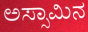
ಅಸ್ಸಾಮಿನ